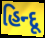
હિન્દૂ